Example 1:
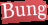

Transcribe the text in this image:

Bung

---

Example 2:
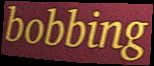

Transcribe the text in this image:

bobbing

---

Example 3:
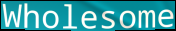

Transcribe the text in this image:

Wholesome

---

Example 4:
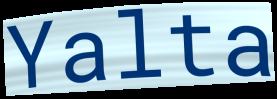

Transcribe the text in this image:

Yalta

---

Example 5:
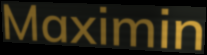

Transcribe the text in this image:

Maximin